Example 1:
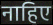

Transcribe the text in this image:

नाहिए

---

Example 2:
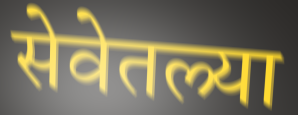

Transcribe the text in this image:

सेवेतल्या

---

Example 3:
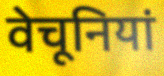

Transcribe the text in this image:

वेचूनियां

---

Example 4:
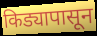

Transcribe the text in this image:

किड्यापासून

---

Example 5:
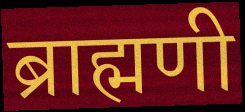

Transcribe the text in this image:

ब्राह्मणी